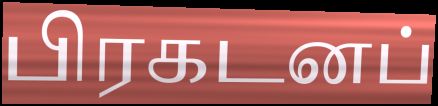
பிரகடனப்